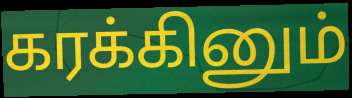
கரக்கினும்